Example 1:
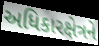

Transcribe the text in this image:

અધિકારક્ષેત્રને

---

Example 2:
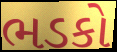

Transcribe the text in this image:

ભડકો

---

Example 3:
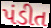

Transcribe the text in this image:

પંડીત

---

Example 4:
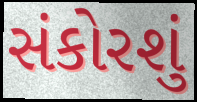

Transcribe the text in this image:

સંકોરશું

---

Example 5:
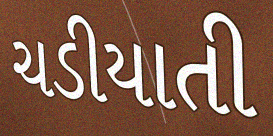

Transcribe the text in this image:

ચડીયાતી